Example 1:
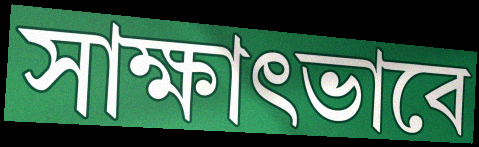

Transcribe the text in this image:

সাক্ষাৎভাবে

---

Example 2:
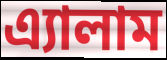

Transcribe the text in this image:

এ্যালাম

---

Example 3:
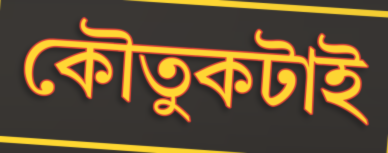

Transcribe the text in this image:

কৌতুকটাই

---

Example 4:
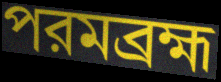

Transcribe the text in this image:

পরমব্রহ্ম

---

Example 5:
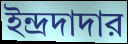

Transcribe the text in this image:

ইন্দ্রদাদার